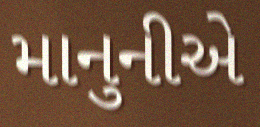
માનુનીએ